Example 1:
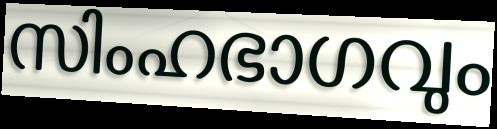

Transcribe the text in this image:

സിംഹഭാഗവും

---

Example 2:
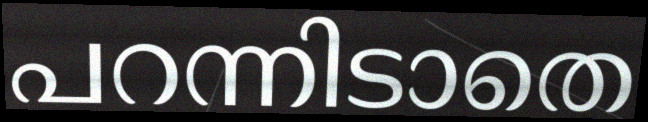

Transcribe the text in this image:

പറന്നിടാതെ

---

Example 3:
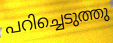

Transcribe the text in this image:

പറിച്ചെടുത്തു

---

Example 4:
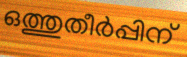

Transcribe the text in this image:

ഒത്തുതീർപ്പിന്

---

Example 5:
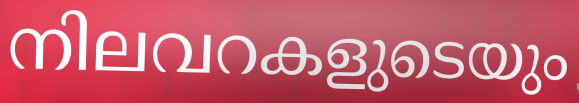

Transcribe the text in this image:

നിലവറകളുടെയും